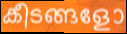
കീടങ്ങളോ